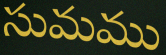
సుమము